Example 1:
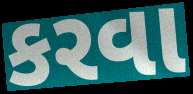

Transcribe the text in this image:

કરવા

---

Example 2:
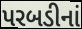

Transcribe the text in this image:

પરબડીનાં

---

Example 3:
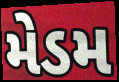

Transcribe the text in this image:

મેડમ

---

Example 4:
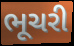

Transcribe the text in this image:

ભૂચરી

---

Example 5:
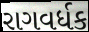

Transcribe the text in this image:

રાગવર્ધક